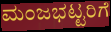
ಮಂಜಭಟ್ಟರಿಗೆ